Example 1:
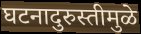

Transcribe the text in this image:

घटनादुरुस्तीमुळे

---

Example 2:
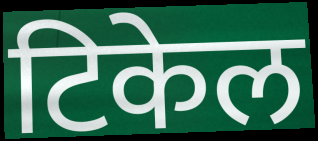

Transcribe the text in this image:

टिकेल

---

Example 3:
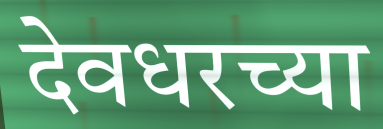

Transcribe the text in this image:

देवधरच्या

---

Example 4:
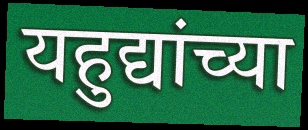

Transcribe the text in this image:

यहुद्यांच्या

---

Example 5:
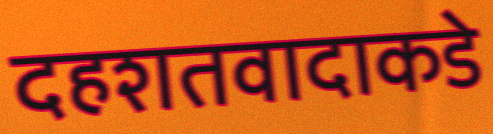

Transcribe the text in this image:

दहशतवादाकडे